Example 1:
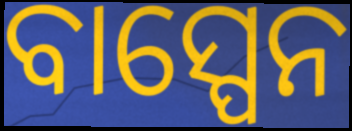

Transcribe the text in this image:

ବାସ୍ପେନ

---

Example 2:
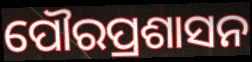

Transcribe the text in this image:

ପୌରପ୍ରଶାସନ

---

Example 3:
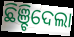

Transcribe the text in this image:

ଛିଞ୍ଚିଦେଲା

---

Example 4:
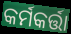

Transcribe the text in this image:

କର୍ମକର୍ତ୍ତା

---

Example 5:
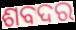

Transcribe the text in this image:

ଶବଦର